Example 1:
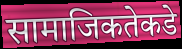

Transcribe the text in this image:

सामाजिकतेकडे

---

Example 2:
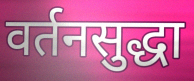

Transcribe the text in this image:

वर्तनसुद्धा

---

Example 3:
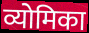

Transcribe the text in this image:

व्योमिका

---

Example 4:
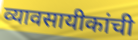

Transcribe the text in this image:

व्यावसायीकांची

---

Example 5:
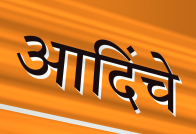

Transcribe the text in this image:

आदिंचे